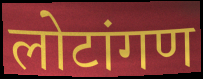
लोटांगण